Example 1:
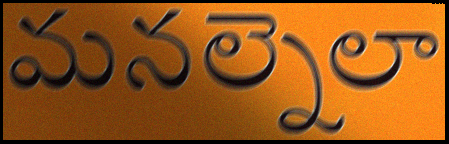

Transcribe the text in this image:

మనల్నెలా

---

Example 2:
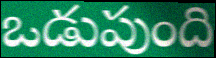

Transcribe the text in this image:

ఒడుపుంది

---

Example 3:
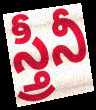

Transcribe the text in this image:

స్త్రీనీ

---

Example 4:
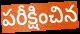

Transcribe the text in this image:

పరీక్షించిన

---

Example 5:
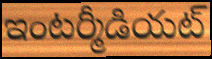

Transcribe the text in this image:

ఇంటర్మీడియట్